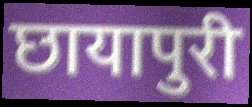
छायापुरी